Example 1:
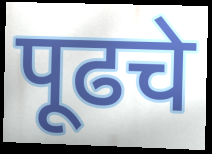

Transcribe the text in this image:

पूढचे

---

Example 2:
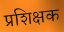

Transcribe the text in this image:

प्रशिक्षक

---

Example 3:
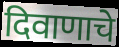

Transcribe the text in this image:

दिवाणाचे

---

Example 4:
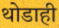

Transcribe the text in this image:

थोडाही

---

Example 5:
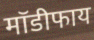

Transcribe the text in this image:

मॉडीफाय